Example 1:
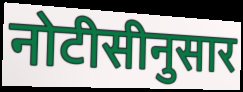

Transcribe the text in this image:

नोटीसीनुसार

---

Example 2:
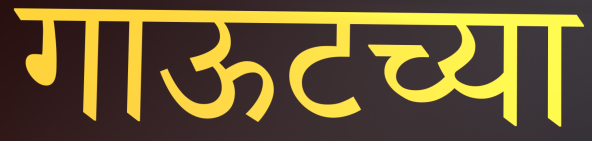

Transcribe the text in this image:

गाऊटच्या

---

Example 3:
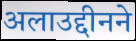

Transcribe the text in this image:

अलाउद्दीनने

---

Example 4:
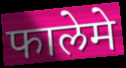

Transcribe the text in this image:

फालेमे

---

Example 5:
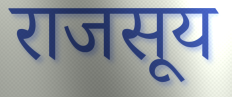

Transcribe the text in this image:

राजसूय